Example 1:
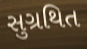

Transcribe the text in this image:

સુગ્રથિત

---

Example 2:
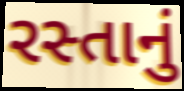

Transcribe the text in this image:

રસ્તાનું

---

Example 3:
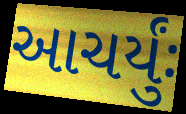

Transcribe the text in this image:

આચર્યુંઃ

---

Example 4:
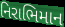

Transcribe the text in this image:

નિરાભિમાન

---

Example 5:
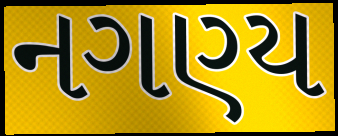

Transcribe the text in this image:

નગણ્ય